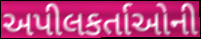
અપીલકર્તાઓની